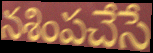
నశింపచేసే